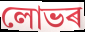
লোভৰ